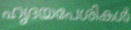
ഹൃദയപേശികൾ